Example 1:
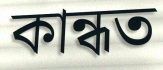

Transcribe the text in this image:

কান্ধত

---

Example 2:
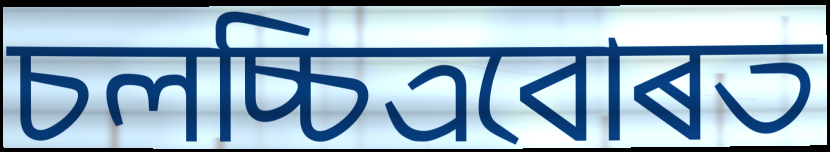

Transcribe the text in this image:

চলচ্চিত্ৰবোৰত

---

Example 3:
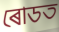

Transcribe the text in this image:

ৰোডত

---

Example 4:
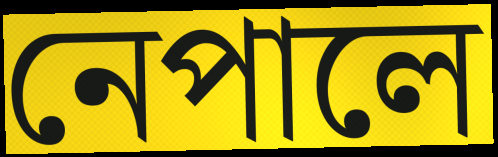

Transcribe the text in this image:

নেপালে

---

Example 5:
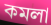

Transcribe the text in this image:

কমলা